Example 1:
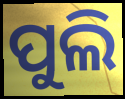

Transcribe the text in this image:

ପୁଲି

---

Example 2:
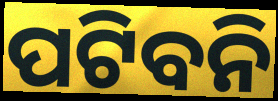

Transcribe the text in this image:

ପଟିବନି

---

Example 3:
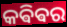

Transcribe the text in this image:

କଵିଵର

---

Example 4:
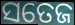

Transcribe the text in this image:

ସତେଜ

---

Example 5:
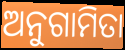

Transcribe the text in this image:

ଅନୁଗାମିତା